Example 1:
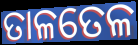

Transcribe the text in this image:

ତାଳତେଳ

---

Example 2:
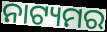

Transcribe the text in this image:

ନାଟ୍ୟମର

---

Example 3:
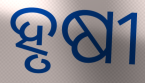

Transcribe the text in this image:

ହୃଷୀ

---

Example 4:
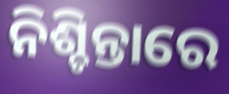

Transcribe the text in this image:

ନିଶ୍ଚିନ୍ତାରେ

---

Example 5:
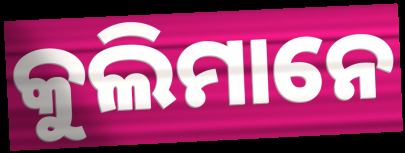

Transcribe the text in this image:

କୁଲିମାନେ